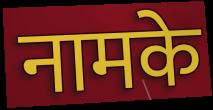
नामके